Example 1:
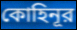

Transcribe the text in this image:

কোহিনূর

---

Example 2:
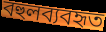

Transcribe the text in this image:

বহুলব্যবহৃত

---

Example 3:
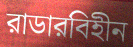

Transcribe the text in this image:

রাডারবিহীন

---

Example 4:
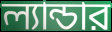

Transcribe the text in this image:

ল্যান্ডার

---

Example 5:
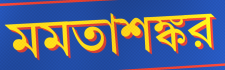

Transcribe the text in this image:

মমতাশঙ্কর